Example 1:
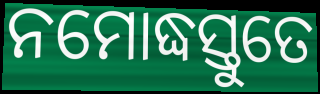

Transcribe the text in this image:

ନମୋଦ୍ଧସ୍ତୁତେ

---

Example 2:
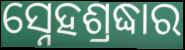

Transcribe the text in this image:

ସ୍ନେହଶ୍ରଦ୍ଧାର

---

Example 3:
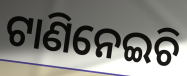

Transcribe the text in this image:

ଟାଣିନେଇଚି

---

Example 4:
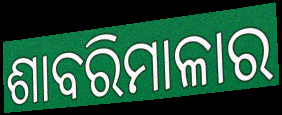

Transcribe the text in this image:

ଶାବରିମାଳାର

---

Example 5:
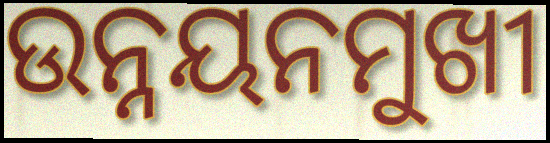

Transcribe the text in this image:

ଉନ୍ନୟନମୁଖୀ